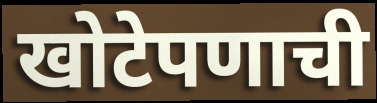
खोटेपणाची